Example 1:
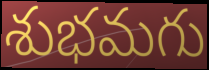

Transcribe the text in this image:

శుభమగు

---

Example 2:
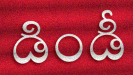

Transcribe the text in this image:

డిండీ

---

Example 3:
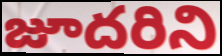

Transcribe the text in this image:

జూదరిని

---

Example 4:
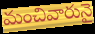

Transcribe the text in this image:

మంచివారునై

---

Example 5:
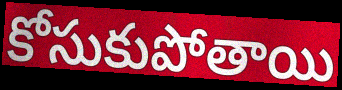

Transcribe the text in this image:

కోసుకుపోతాయి